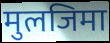
मुलजिमा